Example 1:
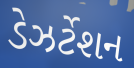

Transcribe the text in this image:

ડેઝર્ટેશન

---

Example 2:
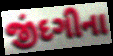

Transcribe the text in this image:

જીંદગીના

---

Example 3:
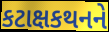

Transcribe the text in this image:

કટાક્ષકથનને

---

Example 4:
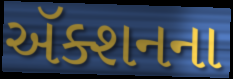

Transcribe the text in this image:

ઍક્શનના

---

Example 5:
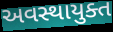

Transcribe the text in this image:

અવસ્થાયુક્ત